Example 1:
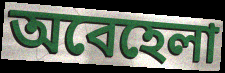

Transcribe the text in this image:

অবেহেলা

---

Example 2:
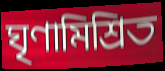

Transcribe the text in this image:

ঘৃণামিশ্রিত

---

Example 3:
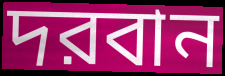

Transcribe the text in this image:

দরবান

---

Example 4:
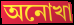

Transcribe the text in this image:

অনোখা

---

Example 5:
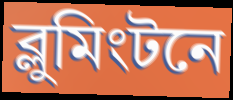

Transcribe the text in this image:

ব্লুমিংটনে